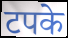
टपके